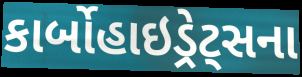
કાર્બોહાઇડ્રેટ્સના